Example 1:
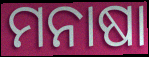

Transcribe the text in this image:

ମନାଷା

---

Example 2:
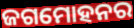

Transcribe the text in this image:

ଜଗମୋହନର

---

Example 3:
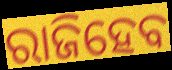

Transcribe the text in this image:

ରାଜିହେବ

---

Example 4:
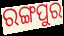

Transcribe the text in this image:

ରଙ୍ଗପୁର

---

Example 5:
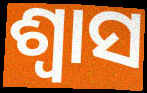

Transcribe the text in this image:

ଶ୍ୱାସ